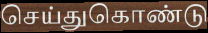
செய்துகொண்டு